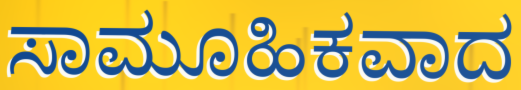
ಸಾಮೂಹಿಕವಾದ